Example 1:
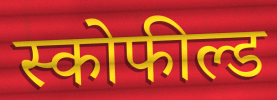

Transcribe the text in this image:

स्कोफील्ड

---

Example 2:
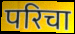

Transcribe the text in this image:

परिचा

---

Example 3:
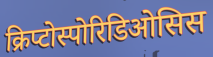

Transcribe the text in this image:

क्रिप्टोस्पोरिडिओसिस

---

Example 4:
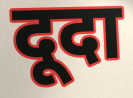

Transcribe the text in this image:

दूदा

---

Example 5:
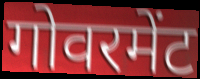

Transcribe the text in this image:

गोवरमेंट